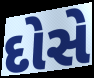
દોસે